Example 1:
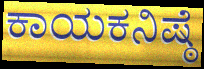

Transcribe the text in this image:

ಕಾಯಕನಿಷ್ಠೆ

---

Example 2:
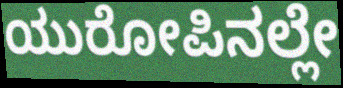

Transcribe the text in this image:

ಯುರೋಪಿನಲ್ಲೇ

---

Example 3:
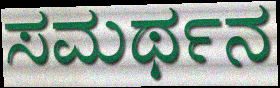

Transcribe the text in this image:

ಸಮರ್ಥನ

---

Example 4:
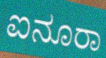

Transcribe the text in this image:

ಐನೂರಾ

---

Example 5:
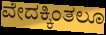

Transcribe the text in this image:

ವೇದಕ್ಕಿಂತಲೂ